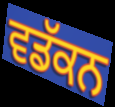
ਵਡੱਕਨ